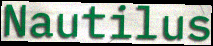
Nautilus